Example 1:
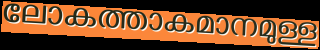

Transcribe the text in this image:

ലോകത്താകമാനമുള്ള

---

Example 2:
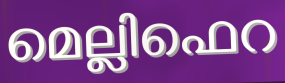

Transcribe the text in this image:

മെല്ലിഫെറ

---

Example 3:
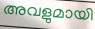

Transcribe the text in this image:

അവളുമായി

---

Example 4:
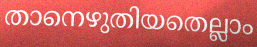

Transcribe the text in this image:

താനെഴുതിയതെല്ലാം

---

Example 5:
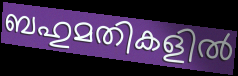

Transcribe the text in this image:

ബഹുമതികളിൽ